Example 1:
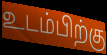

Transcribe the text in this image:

உடம்பிற்கு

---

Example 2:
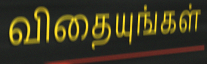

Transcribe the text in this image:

விதையுங்கள்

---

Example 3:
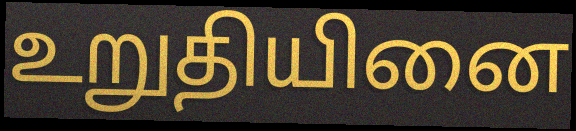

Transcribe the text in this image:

உறுதியினை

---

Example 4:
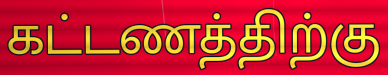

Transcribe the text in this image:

கட்டணத்திற்கு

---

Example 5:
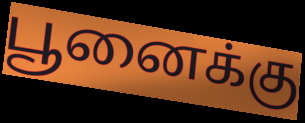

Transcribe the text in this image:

பூனைக்கு